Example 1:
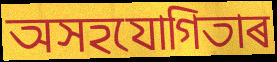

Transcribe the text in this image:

অসহযোগিতাৰ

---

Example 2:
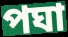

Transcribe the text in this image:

পঘা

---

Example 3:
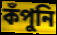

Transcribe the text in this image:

কঁপুনি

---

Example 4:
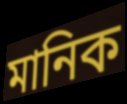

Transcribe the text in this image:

মানিক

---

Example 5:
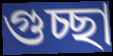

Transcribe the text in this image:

গুচ্ছা